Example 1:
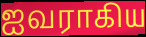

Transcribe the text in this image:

ஐவராகிய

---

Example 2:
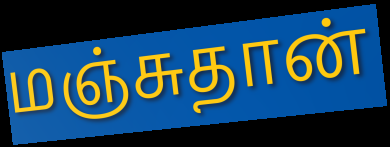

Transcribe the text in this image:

மஞ்சுதான்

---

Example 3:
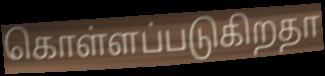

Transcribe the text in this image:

கொள்ளப்படுகிறதா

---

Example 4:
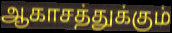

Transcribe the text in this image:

ஆகாசத்துக்கும்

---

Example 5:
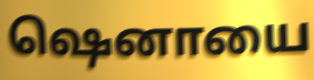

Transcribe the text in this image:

ஷெனாயை